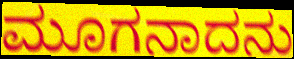
ಮೂಗನಾದನು